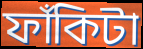
ফাঁকিটা